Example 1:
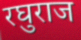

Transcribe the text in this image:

रघुराज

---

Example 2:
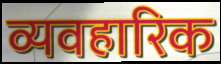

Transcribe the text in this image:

व्यवहारिक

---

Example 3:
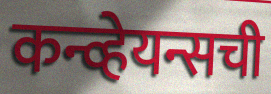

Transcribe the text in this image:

कन्व्हेयन्सची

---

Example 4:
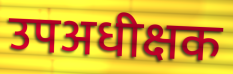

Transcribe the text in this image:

उपअधीक्षक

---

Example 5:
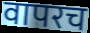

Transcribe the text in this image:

वापरच